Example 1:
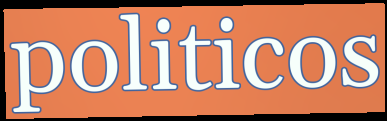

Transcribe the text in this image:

politicos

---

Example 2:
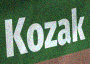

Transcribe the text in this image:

Kozak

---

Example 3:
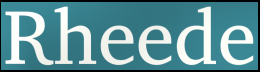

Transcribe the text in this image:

Rheede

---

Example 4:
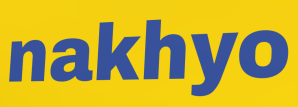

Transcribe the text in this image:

nakhyo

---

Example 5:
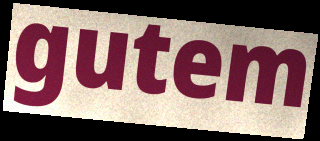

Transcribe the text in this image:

gutem